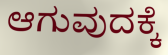
ಆಗುವುದಕ್ಕೆ